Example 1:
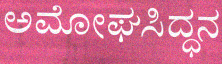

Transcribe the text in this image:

ಅಮೋಘಸಿದ್ಧನ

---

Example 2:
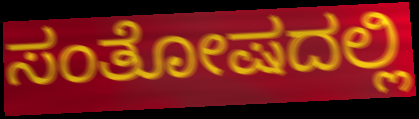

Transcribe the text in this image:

ಸಂತೋಷದಲ್ಲಿ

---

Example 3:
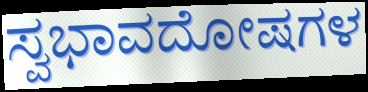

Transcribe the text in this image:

ಸ್ವಭಾವದೋಷಗಳ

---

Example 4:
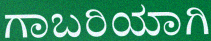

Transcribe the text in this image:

ಗಾಬರಿಯಾಗಿ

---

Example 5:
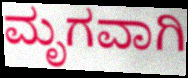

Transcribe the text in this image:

ಮೃಗವಾಗಿ